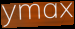
ymax